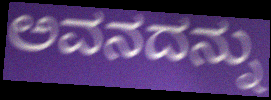
ಅವನದನ್ನು